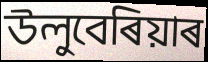
উলুবেৰিয়াৰ